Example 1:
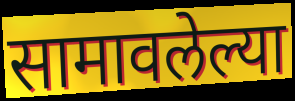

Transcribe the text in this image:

सामावलेल्या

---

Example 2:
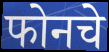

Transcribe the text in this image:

फोनचे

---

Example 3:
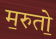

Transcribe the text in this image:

म॒रुतो॒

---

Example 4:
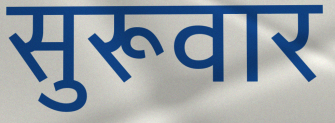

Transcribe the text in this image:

सुरूवार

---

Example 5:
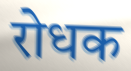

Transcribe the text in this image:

रोधक